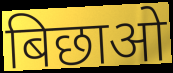
बिछाओ